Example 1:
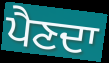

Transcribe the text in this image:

ਪੈਣਦਾ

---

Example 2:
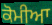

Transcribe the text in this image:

ਕੋਮੀਆ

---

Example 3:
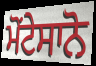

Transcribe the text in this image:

ਮੋਂਟੇਸਾਨੋ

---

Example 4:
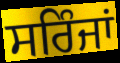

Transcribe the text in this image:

ਸਰਿੰਜਾਂ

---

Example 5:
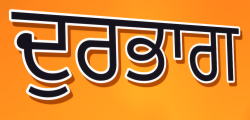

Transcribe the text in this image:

ਦੁਰਭਾਗ